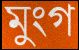
মুংগ